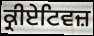
ਕ੍ਰੀਏਟਿਵਜ਼